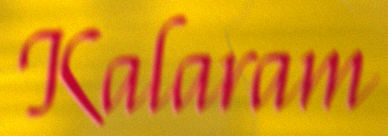
Kalaram